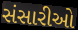
સંસારીઓ